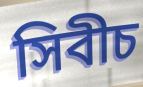
সিবীচ